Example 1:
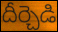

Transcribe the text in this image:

దీర్చెడి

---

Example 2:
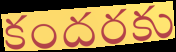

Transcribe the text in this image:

కందరకు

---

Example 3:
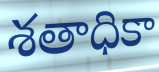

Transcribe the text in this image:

శతాధికా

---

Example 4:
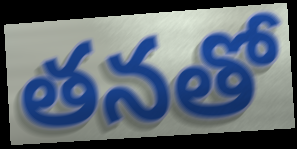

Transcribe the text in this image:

తనతో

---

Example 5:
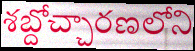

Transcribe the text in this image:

శబ్దోచ్చారణలోని